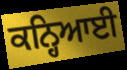
ਕਨ੍ਹਿਆਈ